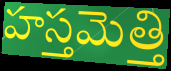
హస్తమెత్తి